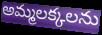
అమ్మలక్కలను